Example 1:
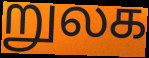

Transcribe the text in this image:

றுலக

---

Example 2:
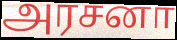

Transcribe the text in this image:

அரசனா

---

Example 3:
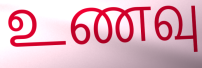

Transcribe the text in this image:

உணவு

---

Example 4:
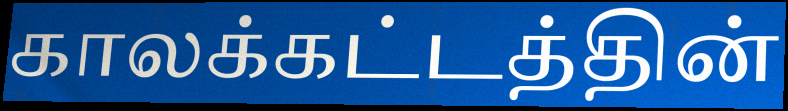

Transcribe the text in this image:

காலக்கட்டத்தின்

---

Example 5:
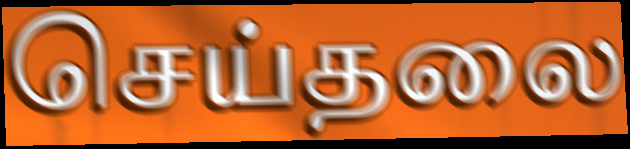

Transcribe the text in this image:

செய்தலை